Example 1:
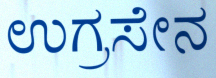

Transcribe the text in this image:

ಉಗ್ರಸೇನ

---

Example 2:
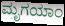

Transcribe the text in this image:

ಮೃಗಯಾಂ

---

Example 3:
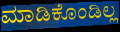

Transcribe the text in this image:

ಮಾಡಿಕೊಂಡಿಲ್ಲ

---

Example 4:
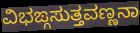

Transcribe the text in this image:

ವಿಭಙ್ಗಸುತ್ತವಣ್ಣನಾ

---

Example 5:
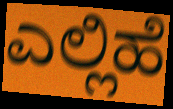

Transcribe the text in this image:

ಎಲ್ಲಿಹೆ